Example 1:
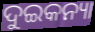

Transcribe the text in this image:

ଦୁଇକନ୍ୟା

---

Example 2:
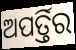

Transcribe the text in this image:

ଅପର୍ତ୍ତିର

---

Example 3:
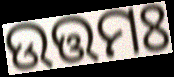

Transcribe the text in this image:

ଉତ୍ତମଃ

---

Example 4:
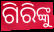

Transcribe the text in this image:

ଗିରିଙ୍କୁ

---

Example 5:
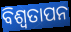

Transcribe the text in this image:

ବିଶ୍ବତାପନ